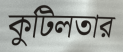
কুটিলতার